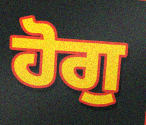
ਹੋਗੁ